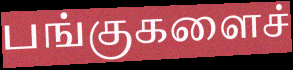
பங்குகளைச்